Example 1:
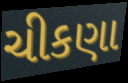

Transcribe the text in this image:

ચીકણા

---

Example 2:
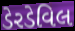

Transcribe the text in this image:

ડેરડેવિલ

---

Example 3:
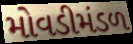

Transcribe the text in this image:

મોવડીમંડળ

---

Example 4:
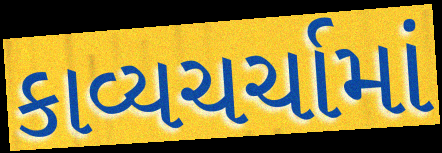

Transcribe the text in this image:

કાવ્યચર્ચામાં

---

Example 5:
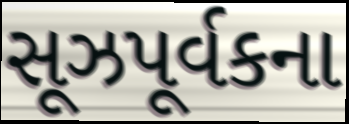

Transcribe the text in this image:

સૂઝપૂર્વકના